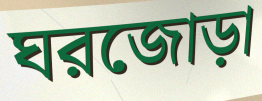
ঘরজোড়া